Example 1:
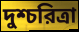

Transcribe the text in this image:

দুশ্চরিত্রা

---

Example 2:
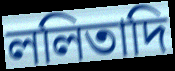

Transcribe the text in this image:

ললিতাদি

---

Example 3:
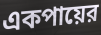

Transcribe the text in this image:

একপায়ের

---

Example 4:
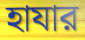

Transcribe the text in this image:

হাযার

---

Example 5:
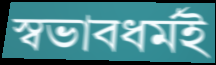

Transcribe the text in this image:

স্বভাবধর্মই